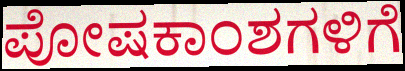
ಪೋಷಕಾಂಶಗಳಿಗೆ